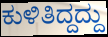
ಕುಳಿತಿದ್ದದ್ದು